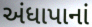
અંધાપાનાં